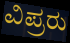
ವಿಪ್ರರು